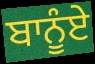
ਬਾਨੂੰਏ